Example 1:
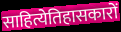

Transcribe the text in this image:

साहित्येतिहासकारों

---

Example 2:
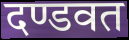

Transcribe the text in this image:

दण्‍डवत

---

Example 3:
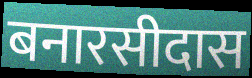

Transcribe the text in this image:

बनारसीदास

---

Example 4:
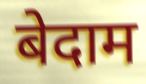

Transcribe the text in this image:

बेदाम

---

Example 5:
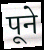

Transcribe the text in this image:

पूने